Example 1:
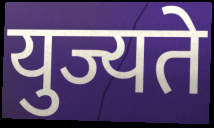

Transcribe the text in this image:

युज्यते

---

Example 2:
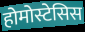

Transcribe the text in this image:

होमोस्टेसिस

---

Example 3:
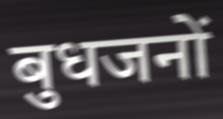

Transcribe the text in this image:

बुधजनों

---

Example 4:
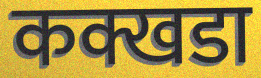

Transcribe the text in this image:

कक्खडा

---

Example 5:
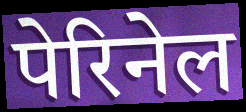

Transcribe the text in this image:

पेरिनेल